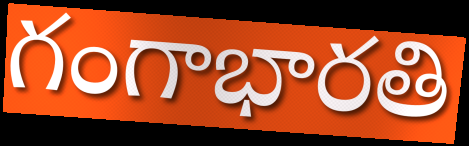
గంగాభారతి